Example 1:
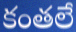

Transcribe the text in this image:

కంతలే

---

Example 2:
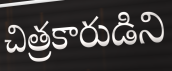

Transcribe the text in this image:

చిత్రకారుడిని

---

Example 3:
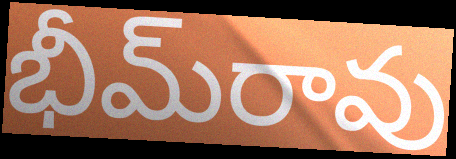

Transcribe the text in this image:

భీమ్‌రావు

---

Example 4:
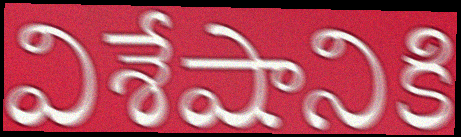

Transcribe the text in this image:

విశేషానికి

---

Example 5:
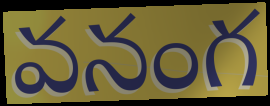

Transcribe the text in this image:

వనంగ